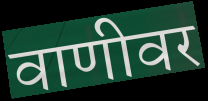
वाणीवर